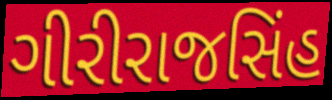
ગીરીરાજસિંહ